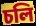
চলি